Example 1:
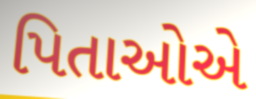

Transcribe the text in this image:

પિતાઓએ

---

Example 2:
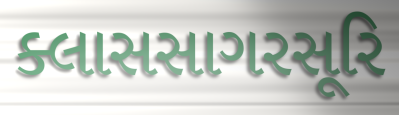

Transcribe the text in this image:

ક્લાસસાગરસૂરિ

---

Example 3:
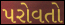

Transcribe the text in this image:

પરોવતો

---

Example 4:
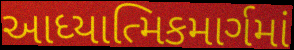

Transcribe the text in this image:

આધ્યાત્મિકમાર્ગમાં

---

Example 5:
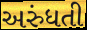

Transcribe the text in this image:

અરુંધતી